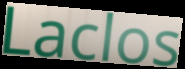
Laclos